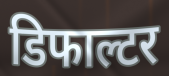
डिफाल्टर